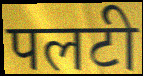
पलटी